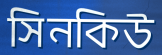
সিনকিউ